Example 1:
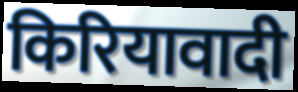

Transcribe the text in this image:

किरियावादी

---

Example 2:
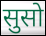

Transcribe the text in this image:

सुसो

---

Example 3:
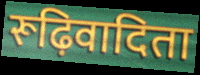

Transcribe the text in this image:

रूढ़िवादिता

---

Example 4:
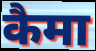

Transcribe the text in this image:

कैमा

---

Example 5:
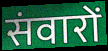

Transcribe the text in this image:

संवारों